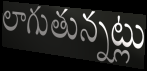
లాగుతున్నట్లు